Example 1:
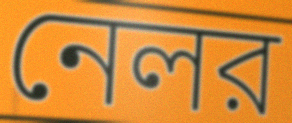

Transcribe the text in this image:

নেলর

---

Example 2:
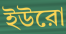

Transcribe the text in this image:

ইউরো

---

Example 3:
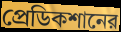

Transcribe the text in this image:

প্রেডিকশানের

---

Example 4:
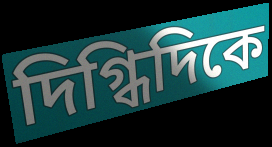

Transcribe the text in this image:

দিগ্ধিদিকে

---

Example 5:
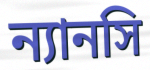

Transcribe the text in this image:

ন্যানসি